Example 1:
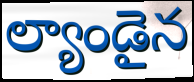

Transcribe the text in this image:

ల్యాండైన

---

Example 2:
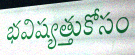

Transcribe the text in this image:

భవిష్యత్తుకోసం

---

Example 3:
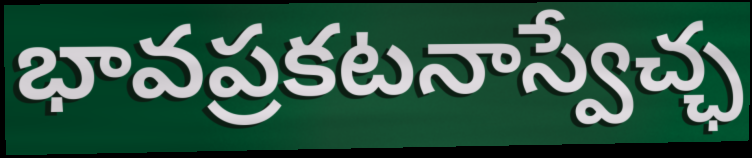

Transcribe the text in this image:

భావప్రకటనాస్వేచ్ఛ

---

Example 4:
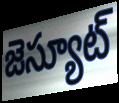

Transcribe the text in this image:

జెస్యూట్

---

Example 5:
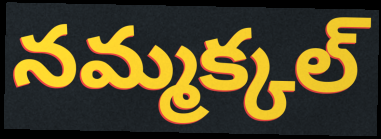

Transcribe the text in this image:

నమ్మక్కల్